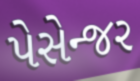
પેસેન્જર